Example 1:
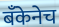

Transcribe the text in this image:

बँकेनेच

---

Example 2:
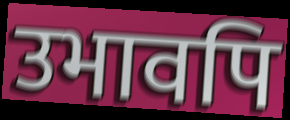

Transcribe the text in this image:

उभावपि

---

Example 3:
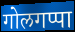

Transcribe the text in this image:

गोलगप्पा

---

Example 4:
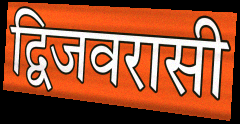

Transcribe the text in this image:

द्विजवरासी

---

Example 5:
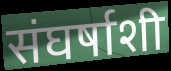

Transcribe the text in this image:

संघर्षाशी